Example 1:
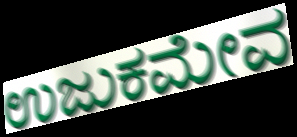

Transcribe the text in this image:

ಉಜುಕಮೇವ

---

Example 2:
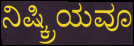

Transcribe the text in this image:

ನಿಷ್ಕ್ರಿಯವೂ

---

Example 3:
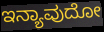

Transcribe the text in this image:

ಇನ್ಯಾವುದೋ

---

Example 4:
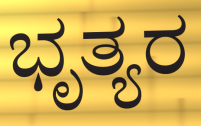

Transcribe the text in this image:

ಭೃತ್ಯರ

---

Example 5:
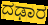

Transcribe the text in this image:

ದಢಾರ